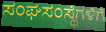
ಸಂಘಸಂಸ್ಥೆಗಳಿಗೆ